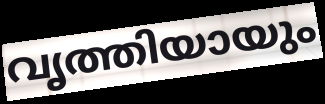
വൃത്തിയായും